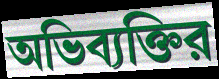
অভিব্যক্তির